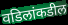
वडिलांकडील